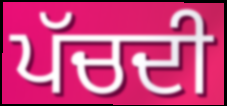
ਪੱਚਦੀ